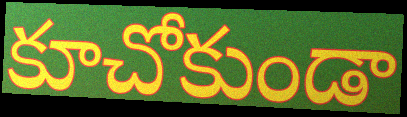
కూచోకుండా